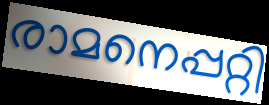
രാമനെപ്പറ്റി